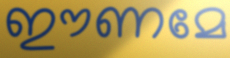
ഈണമേ